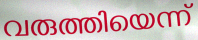
വരുത്തിയെന്ന്